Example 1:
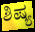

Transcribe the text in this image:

ಶಿಷ್ಯ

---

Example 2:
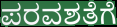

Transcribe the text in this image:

ಪರವಶತೆಗೆ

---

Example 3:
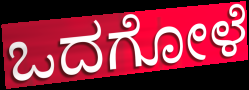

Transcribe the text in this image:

ಒದಗೋಳೆ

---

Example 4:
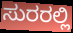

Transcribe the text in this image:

ಸುರರಲ್ಲಿ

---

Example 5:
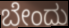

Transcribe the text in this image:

ಬೇಂದು